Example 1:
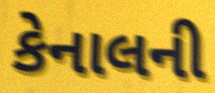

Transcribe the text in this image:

કેનાલની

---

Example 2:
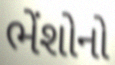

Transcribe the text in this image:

ભેંશોનો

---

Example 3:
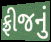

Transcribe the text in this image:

ફ્રીજનું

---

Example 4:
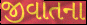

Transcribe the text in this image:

જીવાતના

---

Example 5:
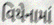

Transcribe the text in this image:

વિયેનામાં